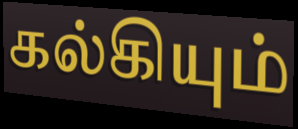
கல்கியும்